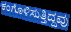
ಕಂಗೊಳಿಸುತ್ತಿದ್ದವು